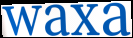
waxa